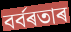
বৰ্বৰতাৰ